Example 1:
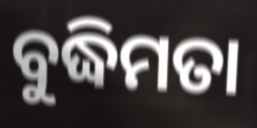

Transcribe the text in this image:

ବୁଦ୍ଧିମତା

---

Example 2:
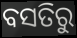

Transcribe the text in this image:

ବସତିରୁ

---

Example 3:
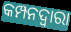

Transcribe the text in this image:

କମ୍ପନଦ୍ୱାରା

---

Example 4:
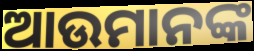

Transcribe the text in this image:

ଆଉମାନଙ୍କ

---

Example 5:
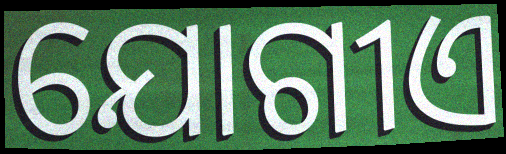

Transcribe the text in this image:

ଯୋଗୀଏ